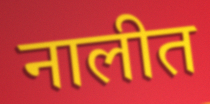
नालीत